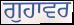
ਗੁਹਾਵਰ